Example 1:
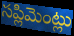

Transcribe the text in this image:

సప్లిమెంట్లు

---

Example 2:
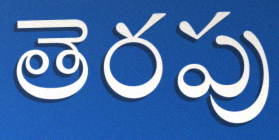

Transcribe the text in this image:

తెరపు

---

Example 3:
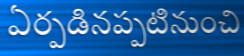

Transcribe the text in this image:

ఏర్పడినప్పటినుంచి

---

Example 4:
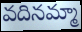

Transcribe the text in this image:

వదినమ్మా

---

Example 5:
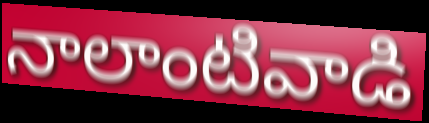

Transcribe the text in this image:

నాలాంటివాడి